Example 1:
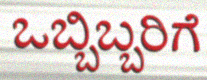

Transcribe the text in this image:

ಒಬ್ಬಿಬ್ಬರಿಗೆ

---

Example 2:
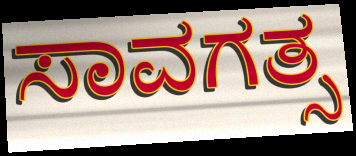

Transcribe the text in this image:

ಸಾವಗತ್ಸ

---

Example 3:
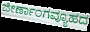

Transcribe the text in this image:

ಜೀರ್ಣಾಂಗವ್ಯೂಹದ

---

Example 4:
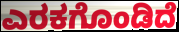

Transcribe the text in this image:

ಎರಕಗೊಂಡಿದೆ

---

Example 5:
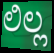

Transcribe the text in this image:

ಲಿಲ್ಲ